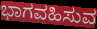
ಭಾಗವಹಿಸುವ